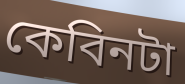
কেবিনটা